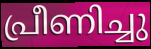
പ്രീണിച്ചു